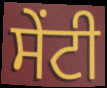
ਸੇਂਟੀ